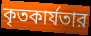
কৃতকার্যতার